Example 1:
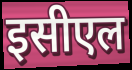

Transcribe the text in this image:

इसीएल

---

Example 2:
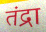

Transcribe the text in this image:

तंद्रा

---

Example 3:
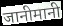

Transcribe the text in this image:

जानीमानी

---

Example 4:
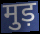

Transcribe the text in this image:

मुड़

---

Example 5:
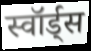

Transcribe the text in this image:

स्वॉर्ड्स